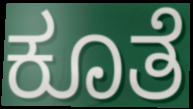
ಕೂತೆ